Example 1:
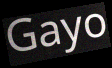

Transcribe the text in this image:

Gayo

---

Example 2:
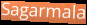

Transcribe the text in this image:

Sagarmala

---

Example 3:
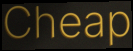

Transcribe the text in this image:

Cheap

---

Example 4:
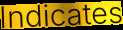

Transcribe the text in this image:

Indicates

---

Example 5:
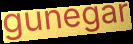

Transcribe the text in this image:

gunegar